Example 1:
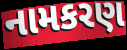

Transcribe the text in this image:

નામકરણ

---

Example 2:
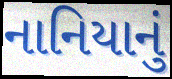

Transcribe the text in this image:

નાનિયાનું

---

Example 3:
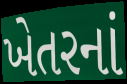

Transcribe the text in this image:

ખેતરનાં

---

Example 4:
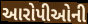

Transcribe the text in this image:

આરોપીઓની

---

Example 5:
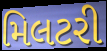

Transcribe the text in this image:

મિલટરી